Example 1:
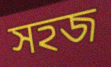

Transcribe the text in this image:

সহজ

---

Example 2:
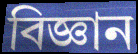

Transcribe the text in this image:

বিজ্ঞান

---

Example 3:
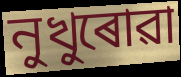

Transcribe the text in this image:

নুখুৰোৱা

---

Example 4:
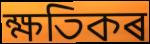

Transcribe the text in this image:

ক্ষতিকৰ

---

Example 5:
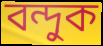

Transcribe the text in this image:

বন্দুক